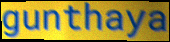
gunthaya